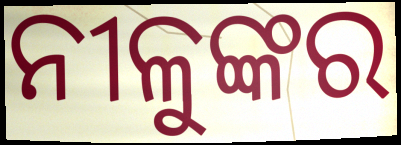
ନୀଳୁଙ୍କର